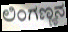
ಲಿಂಗಣ್ಣನ